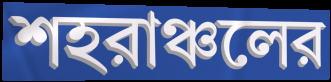
শহরাঞ্চলের